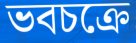
ভবচক্রে